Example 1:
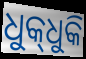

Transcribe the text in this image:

ଧୁକ୍‌ଧୁକି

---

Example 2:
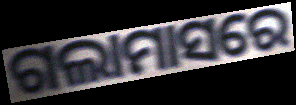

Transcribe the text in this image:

ଗଲାମାସରେ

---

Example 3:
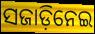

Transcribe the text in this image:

ସଜାଡ଼ିନେଇ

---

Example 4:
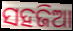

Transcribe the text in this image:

ସହଜିଆ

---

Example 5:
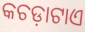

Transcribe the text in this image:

କଚଡ଼ାଟାଏ